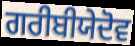
ਗਰੀਬੀਯੇਦੋਵ